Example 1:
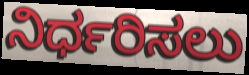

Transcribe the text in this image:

ನಿರ್ಧರಿಸಲು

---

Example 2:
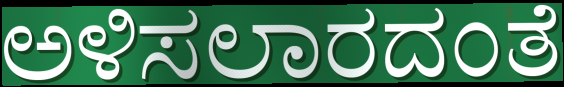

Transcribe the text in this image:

ಅಳಿಸಲಾರದಂತೆ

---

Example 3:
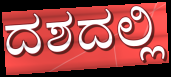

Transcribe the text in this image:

ದಶದಲ್ಲಿ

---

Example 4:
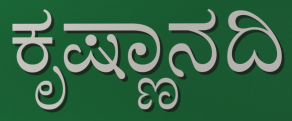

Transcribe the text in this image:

ಕೃಷ್ಣಾನದಿ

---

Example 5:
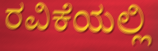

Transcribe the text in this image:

ರವಿಕೆಯಲ್ಲಿ